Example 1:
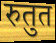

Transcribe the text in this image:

रुतुत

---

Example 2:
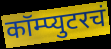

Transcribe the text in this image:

कॉम्प्युटरचं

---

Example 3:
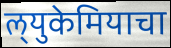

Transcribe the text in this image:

ल्युकेमियाचा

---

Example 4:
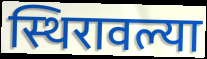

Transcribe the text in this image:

स्थिरावल्या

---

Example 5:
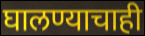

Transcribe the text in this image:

घालण्याचाही